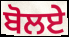
ਬੋਲਏ